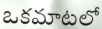
ఒకమాటలో